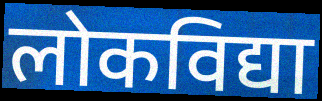
लोकविद्या